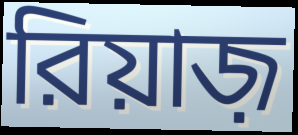
রিয়াজ়